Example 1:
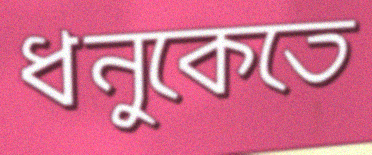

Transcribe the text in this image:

ধনুকেতে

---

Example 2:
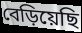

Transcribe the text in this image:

বেড়িয়েছি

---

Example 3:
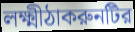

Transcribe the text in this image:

লক্ষ্মীঠাকরুনটির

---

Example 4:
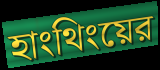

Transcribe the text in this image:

হাংথিংয়ের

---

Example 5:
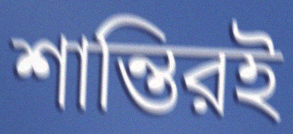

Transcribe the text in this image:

শান্তিরই